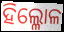
ହିଲ୍ଳୋଳ